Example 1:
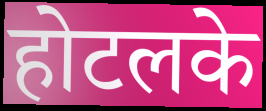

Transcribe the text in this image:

होटलके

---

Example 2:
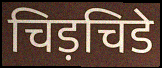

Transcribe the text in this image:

चिड़चिडे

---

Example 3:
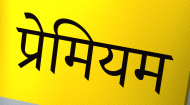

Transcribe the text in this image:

प्रेमियम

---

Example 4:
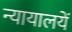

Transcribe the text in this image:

न्यायालयें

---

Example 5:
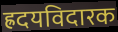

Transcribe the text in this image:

ह्रदयविदारक